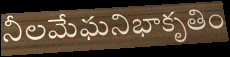
నీలమేఘనిభాకృతిం